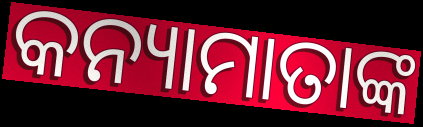
କନ୍ୟାମାତାଙ୍କ